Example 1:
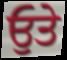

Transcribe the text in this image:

ਓੁਤੇ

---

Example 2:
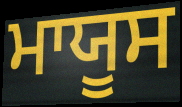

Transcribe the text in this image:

ਮਾਯੂਸ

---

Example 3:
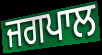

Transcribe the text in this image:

ਜਗਪਾਲ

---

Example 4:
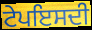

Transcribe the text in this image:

ਟੇਪਇਸਦੀ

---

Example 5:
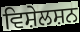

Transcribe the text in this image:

ਵਿਸ਼ੇਲਸ਼ਨ